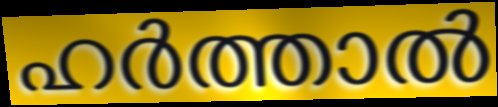
ഹർത്താൽ